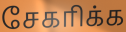
சேகரிக்க